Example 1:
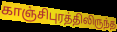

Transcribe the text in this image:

காஞ்சிபுரத்திலிருந்த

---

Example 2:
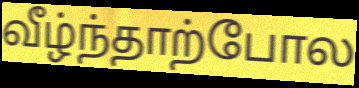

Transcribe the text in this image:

வீழ்ந்தாற்போல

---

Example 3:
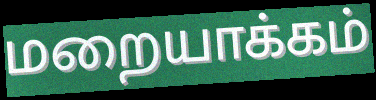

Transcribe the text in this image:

மறையாக்கம்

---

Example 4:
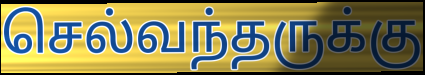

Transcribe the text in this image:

செல்வந்தருக்கு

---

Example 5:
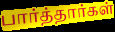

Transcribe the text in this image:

பார்த்தார்கள்